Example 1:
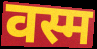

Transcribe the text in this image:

वस्म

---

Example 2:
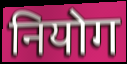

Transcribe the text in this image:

नियोग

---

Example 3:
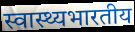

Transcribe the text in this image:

स्वास्थ्यभारतीय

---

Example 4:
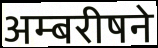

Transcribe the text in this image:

अम्बरीषने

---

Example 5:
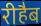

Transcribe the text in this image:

रीहैब